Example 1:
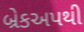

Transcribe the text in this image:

બ્રેકઅપથી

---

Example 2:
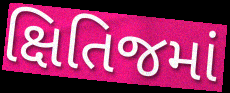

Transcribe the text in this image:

ક્ષિતિજમાં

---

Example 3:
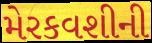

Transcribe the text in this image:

મેરકવશીની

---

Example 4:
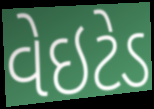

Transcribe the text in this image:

વેઇટેડ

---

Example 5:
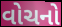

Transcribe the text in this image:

વોચનો